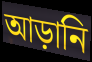
আড়ানি